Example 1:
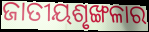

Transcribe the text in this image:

ଜାତୀୟଶୃଙ୍ଖଳାର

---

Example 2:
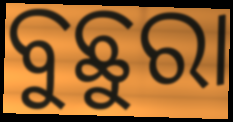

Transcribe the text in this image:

ବୁଛୁରା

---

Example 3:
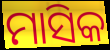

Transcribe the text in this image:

ମାସିକ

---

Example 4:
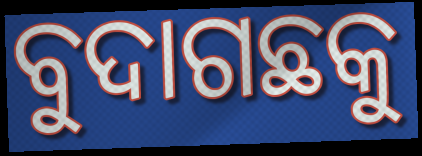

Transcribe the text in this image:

ବୁଦାଗଛକୁ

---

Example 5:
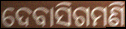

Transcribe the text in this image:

ଦେବାସିଗମଣି